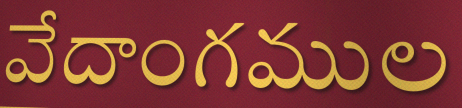
వేదాంగముల